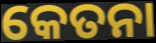
କେତନା